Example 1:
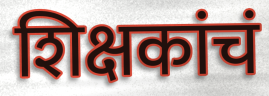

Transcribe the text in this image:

शिक्षकांचं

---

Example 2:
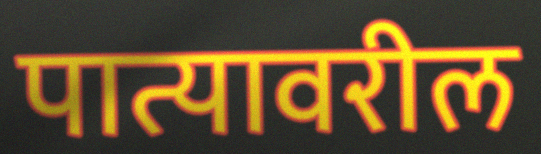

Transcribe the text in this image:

पात्यावरील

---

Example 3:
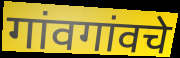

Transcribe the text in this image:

गांवगांवचे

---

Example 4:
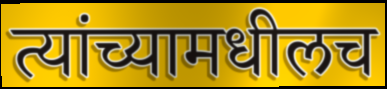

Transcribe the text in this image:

त्यांच्यामधीलच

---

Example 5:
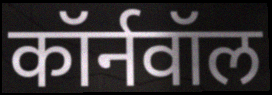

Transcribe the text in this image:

कॉर्नवॉल